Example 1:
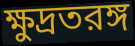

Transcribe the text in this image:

ক্ষুদ্রতরঙ্গ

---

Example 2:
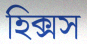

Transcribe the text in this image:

হিক্সস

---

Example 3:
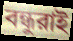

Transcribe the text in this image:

বন্ধুরাই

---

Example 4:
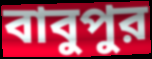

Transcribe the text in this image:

বাবুপুর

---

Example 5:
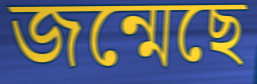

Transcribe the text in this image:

জন্মেছে